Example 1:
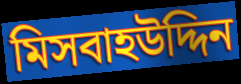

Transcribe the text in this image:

মিসবাহউদ্দিন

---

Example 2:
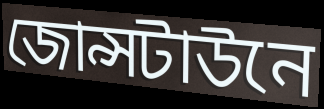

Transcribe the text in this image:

জোন্সটাউনে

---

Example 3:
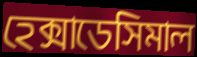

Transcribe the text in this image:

হেক্সাডেসিমাল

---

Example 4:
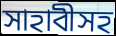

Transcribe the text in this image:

সাহাবীসহ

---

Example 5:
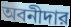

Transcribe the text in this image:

অবনীদার